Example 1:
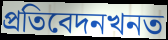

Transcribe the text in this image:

প্ৰতিবেদনখনত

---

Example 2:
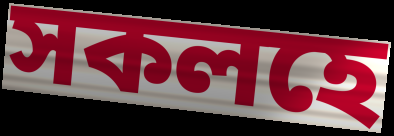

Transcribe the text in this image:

সকলহে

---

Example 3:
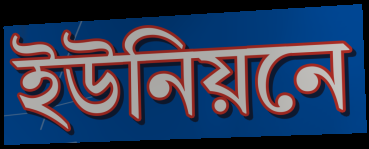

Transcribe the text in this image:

ইউনিয়নে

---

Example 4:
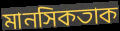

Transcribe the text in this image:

মানসিকতাক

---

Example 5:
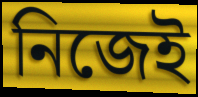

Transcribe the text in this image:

নিজেই